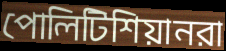
পোলিটিশিয়ানরা